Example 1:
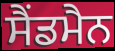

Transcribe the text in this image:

ਸੈਂਡਮੈਨ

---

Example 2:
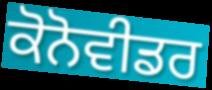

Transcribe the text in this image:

ਕੋਨੋਵੀਡਰ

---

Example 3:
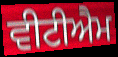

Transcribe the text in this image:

ਵੀਟੀਐਮ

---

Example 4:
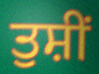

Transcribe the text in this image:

ਤੁਸ਼ੀਂ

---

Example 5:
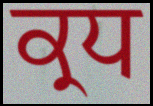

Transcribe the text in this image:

ਕ੍ਰਧ